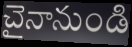
చైనానుండి